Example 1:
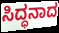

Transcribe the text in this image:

ಸಿದ್ಧನಾದ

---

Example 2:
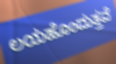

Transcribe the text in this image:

ಲಯಹೊಂದುತ್ತವೆ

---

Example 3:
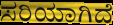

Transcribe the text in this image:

ಸರಿಯಾಗಿದೆ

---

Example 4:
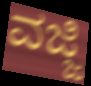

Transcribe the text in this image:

ವಜ್ಜಿ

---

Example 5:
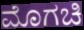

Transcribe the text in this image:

ಮೊಗಚಿ